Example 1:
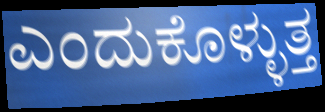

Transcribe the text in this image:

ಎಂದುಕೊಳ್ಳುತ್ತ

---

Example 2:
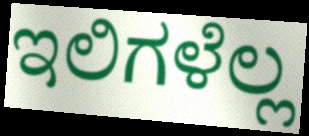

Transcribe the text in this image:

ಇಲಿಗಳೆಲ್ಲ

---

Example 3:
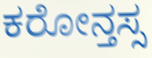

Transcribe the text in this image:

ಕರೋನ್ತಸ್ಸ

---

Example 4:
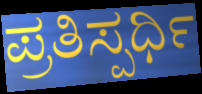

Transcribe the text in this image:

ಪ್ರತಿಸ್ಪರ್ಧಿ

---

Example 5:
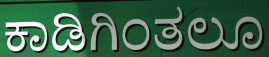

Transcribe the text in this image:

ಕಾಡಿಗಿಂತಲೂ